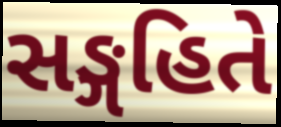
સઙ્ગહિતે